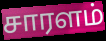
சாரளம்